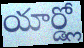
యార్డ్లో